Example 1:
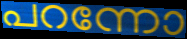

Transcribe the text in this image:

പറന്നോ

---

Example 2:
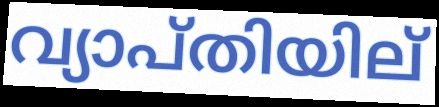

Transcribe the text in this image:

വ്യാപ്തിയില്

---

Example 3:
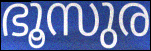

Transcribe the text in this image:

ഭൂസുര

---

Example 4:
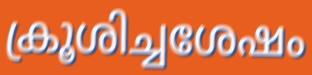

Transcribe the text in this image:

ക്രൂശിച്ചശേഷം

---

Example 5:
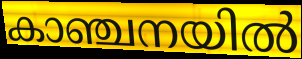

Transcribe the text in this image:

കാഞ്ചനയിൽ